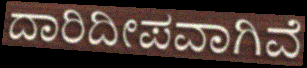
ದಾರಿದೀಪವಾಗಿವೆ